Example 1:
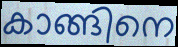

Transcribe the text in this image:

കാങ്ങിനെ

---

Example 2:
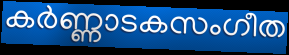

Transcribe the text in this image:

കർണ്ണാടകസംഗീത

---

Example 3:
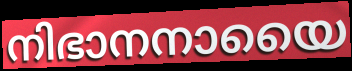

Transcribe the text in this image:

നിഭാനനായൈ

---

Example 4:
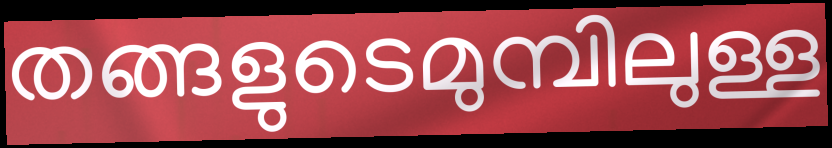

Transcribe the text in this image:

തങ്ങളുടെമുമ്പിലുള്ള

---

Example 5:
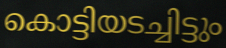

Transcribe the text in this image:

കൊട്ടിയടച്ചിട്ടും